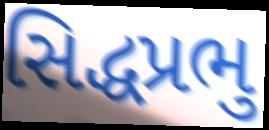
સિદ્ધપ્રભુ